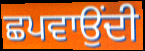
ਛਪਵਾਉਂਦੀ